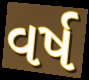
વર્ષ